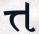
ત્ત